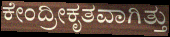
ಕೇಂದ್ರೀಕೃತವಾಗಿತ್ತು